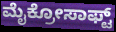
ಮೈಕ್ರೋಸಾಫ್ಟ್